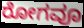
ರೋಗವೂ